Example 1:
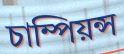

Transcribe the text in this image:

চাম্পিয়ন্স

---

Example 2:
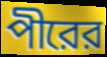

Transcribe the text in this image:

পীরের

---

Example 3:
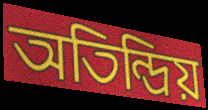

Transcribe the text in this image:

অতিন্দ্রিয়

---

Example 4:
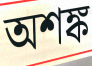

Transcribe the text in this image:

অশঙ্ক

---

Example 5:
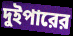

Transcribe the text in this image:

দুইপারের